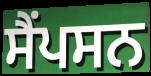
ਸੈਂਪਸਨ